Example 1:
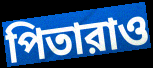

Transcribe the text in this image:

পিতারাও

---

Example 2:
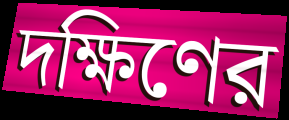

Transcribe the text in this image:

দক্ষিণের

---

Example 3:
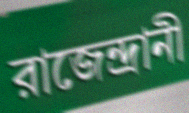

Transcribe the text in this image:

রাজেন্দ্রানী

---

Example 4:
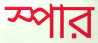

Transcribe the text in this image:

স্পার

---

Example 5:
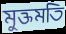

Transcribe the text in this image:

মুক্তমতি